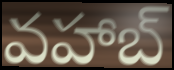
వహాబ్